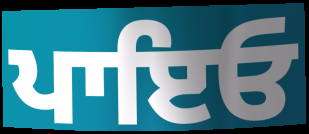
ਪਾਇਓ